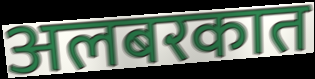
अलबरकात